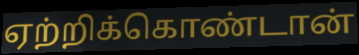
ஏற்றிக்கொண்டான்